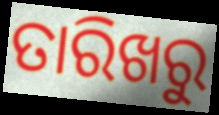
ତାରିଖରୁ